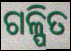
ଗଳ୍ପିତ